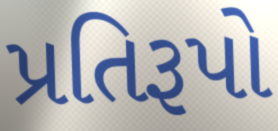
પ્રતિરૂપો